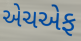
એચએફ